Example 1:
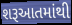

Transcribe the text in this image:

શરૂઆતમાંથી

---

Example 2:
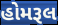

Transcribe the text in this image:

હોમરૂલ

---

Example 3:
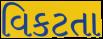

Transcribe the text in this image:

વિકટતા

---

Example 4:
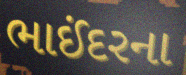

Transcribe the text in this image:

ભાઈંદરના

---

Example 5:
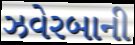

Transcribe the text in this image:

ઝવેરબાની